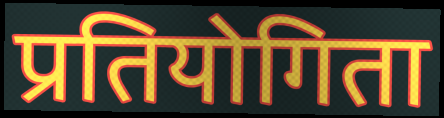
प्रतियोगिता